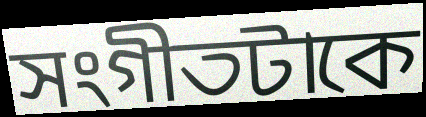
সংগীতটাকে